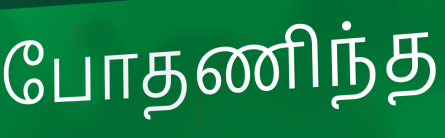
போதணிந்த